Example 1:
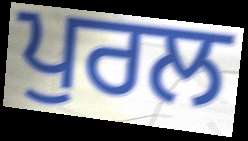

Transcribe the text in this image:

ਪੁਰਲ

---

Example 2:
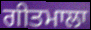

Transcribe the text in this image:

ਗੀਤਮਾਲਾ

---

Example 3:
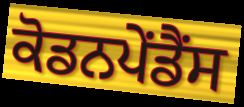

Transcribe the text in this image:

ਕੋਡਨਪੇਂਡੈਂਸ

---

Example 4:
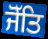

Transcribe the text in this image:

ਜੋੱਤਿ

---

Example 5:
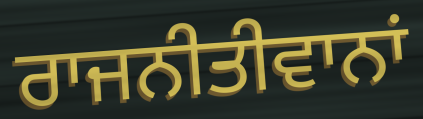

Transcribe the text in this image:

ਰਾਜਨੀਤੀਵਾਨਾਂ